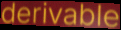
derivable